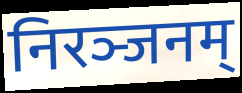
निरञ्जनम्